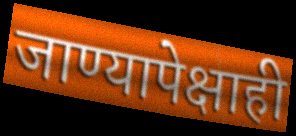
जाण्यापेक्षाही